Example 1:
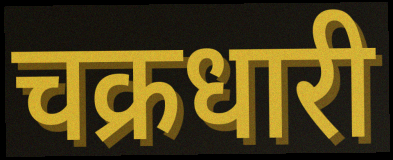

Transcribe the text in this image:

चक्रधारी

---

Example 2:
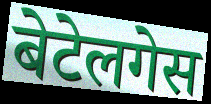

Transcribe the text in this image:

बेटेलगेस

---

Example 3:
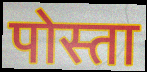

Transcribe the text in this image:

पोस्ता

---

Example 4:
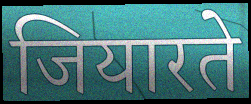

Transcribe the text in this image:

जियारते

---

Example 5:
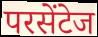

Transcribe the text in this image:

परसेंटेज